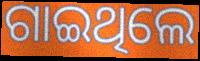
ଗାଇଥିଲେ